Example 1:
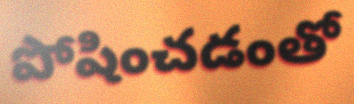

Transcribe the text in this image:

పోషించడంతో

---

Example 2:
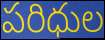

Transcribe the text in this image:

పరిధుల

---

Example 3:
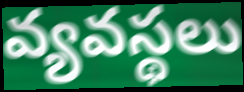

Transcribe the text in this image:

వ్యవస్థలు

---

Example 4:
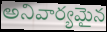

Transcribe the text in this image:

అనివార్యమైన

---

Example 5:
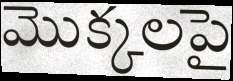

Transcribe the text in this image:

మొక్కలపై